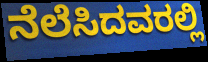
ನೆಲೆಸಿದವರಲ್ಲಿ